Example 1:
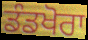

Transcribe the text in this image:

ਡੰਡਖੋਰਾ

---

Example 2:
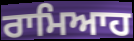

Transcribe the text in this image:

ਰਾਮਿਆਹ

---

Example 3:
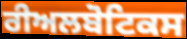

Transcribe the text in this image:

ਰੀਅਲਬੋਟਿਕਸ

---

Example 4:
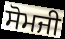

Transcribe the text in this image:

ਸੋਮਜੀ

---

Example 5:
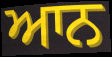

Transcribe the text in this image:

ਆਨ